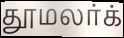
தூமலர்க்